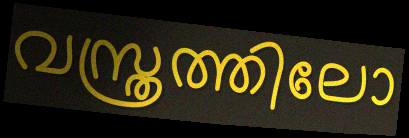
വസ്ത്രത്തിലോ